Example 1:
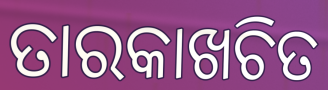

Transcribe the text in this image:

ତାରକାଖଚିତ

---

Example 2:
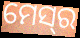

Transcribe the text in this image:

ମେସ୍‌ର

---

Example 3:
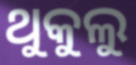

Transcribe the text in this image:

ଥୁକୁଲୁ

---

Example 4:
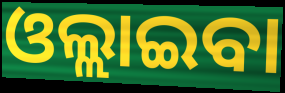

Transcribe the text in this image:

ଓଲ୍ଲାଇବା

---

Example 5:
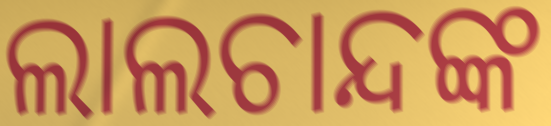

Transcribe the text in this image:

ଲାଲଚାନ୍ଦଙ୍କ